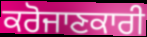
ਕਰੋਜਾਣਕਾਰੀ